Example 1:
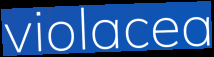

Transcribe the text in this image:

violacea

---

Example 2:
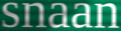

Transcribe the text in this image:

snaan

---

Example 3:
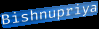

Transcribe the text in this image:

Bishnupriya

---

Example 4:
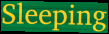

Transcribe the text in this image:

Sleeping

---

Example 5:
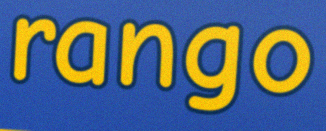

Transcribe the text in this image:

rango